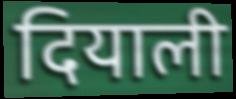
दियाली